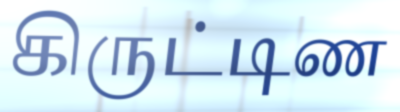
கிருட்டிண